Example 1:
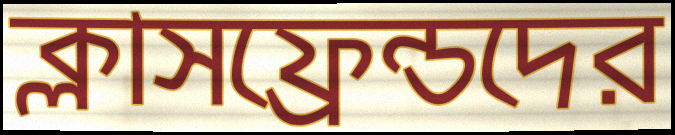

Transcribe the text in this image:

ক্লাসফ্রেন্ডদের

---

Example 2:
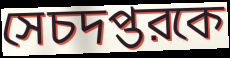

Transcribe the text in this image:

সেচদপ্তরকে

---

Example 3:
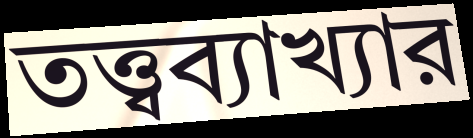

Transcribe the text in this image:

তত্ত্বব্যাখ্যার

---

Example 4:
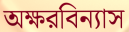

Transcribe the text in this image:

অক্ষরবিন্যাস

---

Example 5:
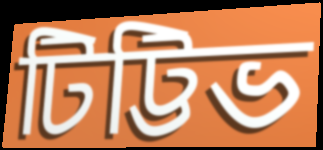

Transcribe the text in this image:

টিট্টিভ